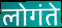
लोगंते